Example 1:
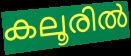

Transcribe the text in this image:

കലൂരിൽ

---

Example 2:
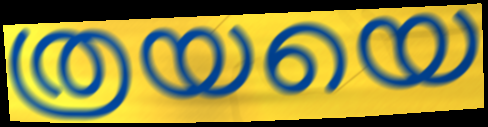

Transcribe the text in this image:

ത്രയയെ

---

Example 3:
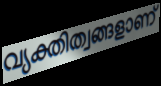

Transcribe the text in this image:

വ്യക്തിത്വങ്ങളാണ്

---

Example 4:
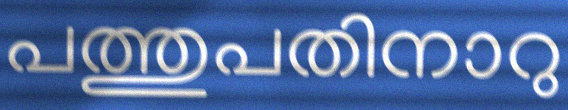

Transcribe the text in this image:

പത്തുപതിനാറു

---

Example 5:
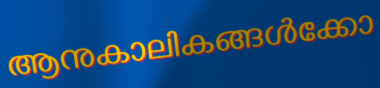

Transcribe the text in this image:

ആനുകാലികങ്ങൾക്കോ